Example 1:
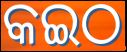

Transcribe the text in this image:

କଇଠ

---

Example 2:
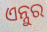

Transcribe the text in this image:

ଏନ୍ନୁର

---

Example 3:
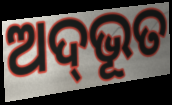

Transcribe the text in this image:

ଅଦ୍‌ଭୂତ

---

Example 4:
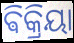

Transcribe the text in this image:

ଵିକ୍ରିୟା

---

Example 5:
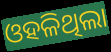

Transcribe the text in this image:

ଓହଳିଥିଲା